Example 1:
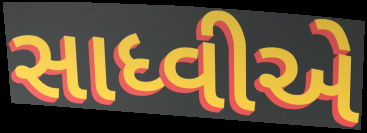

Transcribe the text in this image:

સાધ્વીએ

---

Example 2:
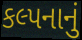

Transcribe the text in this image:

કલ્પનાનું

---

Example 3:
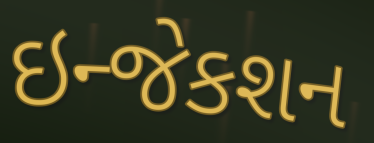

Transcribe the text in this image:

ઇન્જેકશન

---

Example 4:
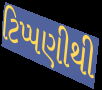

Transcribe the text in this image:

ટિપ્પણીથી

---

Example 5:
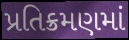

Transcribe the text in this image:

પ્રતિક્રમણમાં